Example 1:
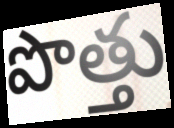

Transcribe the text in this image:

పొత్తు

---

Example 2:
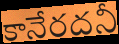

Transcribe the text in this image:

కానేరదనీ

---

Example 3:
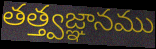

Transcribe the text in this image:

తత్త్వజ్ఞానము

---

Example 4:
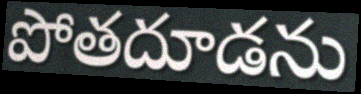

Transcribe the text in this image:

పోతదూడను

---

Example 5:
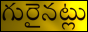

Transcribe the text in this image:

గురైనట్లు